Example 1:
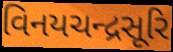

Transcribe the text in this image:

વિનયચન્દ્રસૂરિ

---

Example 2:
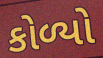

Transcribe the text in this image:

કોળ્યો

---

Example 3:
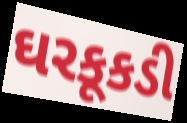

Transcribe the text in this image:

ઘરકૂકડી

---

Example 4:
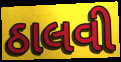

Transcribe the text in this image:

ઠાલવી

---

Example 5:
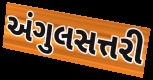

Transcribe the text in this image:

અંગુલસત્તરી